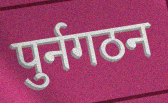
पुर्नगठन